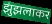
झुंझलाकर